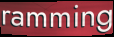
ramming